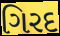
ગિરદ